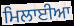
ਮਿਲਾਈਆ